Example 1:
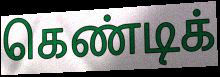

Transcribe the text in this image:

கெண்டிக்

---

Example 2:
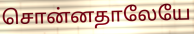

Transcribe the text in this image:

சொன்னதாலேயே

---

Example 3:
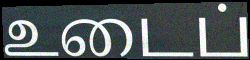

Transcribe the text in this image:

உடைப்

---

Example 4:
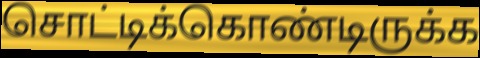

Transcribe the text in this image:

சொட்டிக்கொண்டிருக்க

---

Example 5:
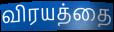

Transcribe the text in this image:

விரயத்தை